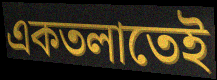
একতলাতেই